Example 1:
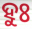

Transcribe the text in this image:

ହୁଃ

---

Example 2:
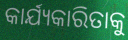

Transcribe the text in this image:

କାର୍ଯ୍ୟକାରିତାକୁ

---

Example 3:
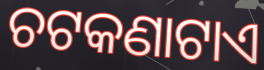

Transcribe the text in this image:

ଚଟକଣାଟାଏ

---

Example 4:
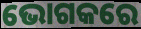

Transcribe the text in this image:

ଭୋଗକରେ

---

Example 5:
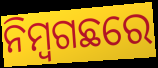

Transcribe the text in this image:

ନିମ୍ବଗଛରେ